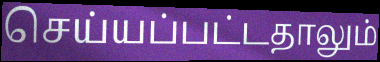
செய்யப்பட்டதாலும்